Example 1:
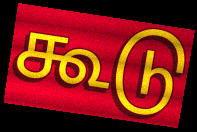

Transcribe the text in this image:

கூடு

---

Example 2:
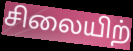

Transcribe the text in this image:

சிலையிற்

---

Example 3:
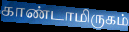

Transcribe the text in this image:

காண்டாமிருகம்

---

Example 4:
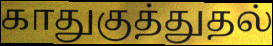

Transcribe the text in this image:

காதுகுத்துதல்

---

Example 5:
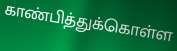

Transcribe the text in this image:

காண்பித்துக்கொள்ள